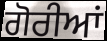
ਗੋਰੀਆਂ